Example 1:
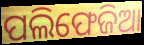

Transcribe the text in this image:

ପଲିଫେଜିଆ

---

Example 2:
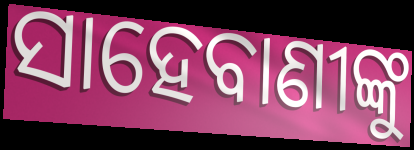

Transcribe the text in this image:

ସାହେବାଣୀଙ୍କୁ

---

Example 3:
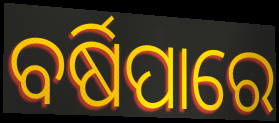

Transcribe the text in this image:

ବର୍ଷିପାରେ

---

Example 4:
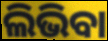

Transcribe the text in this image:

ଲିଭିବା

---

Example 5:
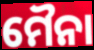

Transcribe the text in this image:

ମୈନା